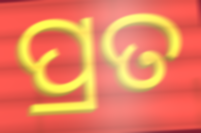
ପ୍ରତ